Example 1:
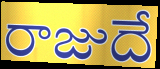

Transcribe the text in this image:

రాజుదే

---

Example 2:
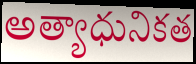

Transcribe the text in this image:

అత్యాధునికత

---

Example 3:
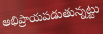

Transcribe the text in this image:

అభిప్రాయపడుతున్నట్టు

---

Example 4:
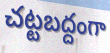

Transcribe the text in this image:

చట్టబద్దంగా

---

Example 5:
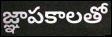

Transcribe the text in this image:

జ్ఞాపకాలతో